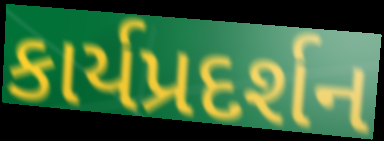
કાર્યપ્રદર્શન